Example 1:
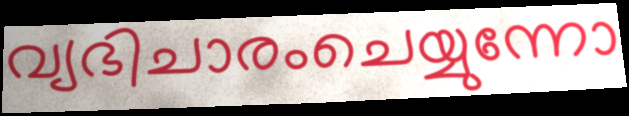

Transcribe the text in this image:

വ്യഭിചാരംചെയ്യുന്നോ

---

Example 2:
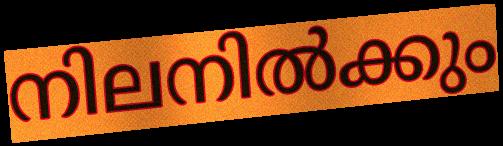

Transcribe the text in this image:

നിലനിൽക്കും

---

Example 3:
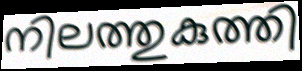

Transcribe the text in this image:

നിലത്തുകുത്തി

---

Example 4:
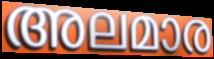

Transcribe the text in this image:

അലമാര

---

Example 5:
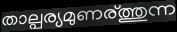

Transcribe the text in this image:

താല്പര്യമുണര്ത്തുന്ന